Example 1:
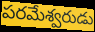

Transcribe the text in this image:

పరమేశ్వరుడు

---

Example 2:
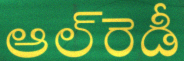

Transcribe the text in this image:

ఆల్‌రెడీ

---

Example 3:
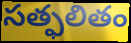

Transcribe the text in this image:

సత్ఫలితం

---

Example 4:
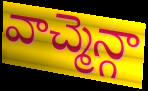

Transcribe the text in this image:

వాచ్మెన్గా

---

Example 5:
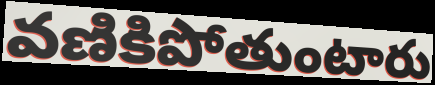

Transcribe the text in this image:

వణికిపోతుంటారు